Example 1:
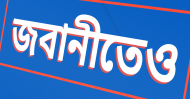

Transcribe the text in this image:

জবানীতেও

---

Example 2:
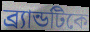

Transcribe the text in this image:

ব্র্যান্ডটিকে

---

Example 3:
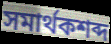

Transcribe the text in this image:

সমার্থকশব্দ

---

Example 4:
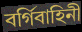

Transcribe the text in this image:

বর্গিবাহিনী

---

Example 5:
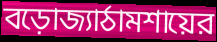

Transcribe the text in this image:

বড়োজ্যাঠামশায়ের